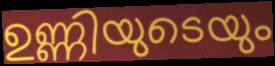
ഉണ്ണിയുടെയും